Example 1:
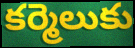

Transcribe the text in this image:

కర్మెలుకు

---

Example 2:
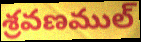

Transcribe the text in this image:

శ్రవణముల్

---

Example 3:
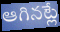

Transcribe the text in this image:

ఆగినట్లే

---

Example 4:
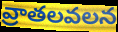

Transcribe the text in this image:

వ్రాతలవలన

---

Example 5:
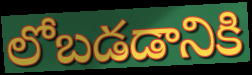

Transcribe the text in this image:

లోబడడానికి